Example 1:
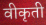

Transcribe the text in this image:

वीकृती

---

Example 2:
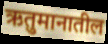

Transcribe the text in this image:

ऋतुमानातील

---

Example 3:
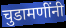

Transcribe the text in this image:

चुडामणींनी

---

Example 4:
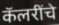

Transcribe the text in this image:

कॅलरींचे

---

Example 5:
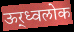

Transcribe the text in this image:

ऊर्ध्वलोक